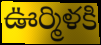
ఊర్మిళకి